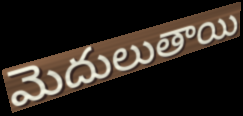
మెదులుతాయి